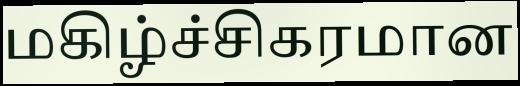
மகிழ்ச்சிகரமான